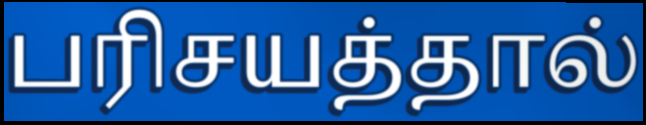
பரிசயத்தால்